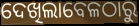
ଦେଖିଲାବେଳଠାରୁ